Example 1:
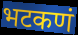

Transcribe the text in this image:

भटकणं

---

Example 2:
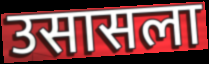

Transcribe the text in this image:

उसासला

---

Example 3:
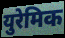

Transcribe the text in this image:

युरेमिक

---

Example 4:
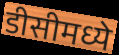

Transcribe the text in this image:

डीसीमध्ये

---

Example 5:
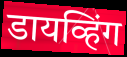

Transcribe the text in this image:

डायव्हिंग